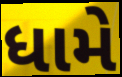
ધામે